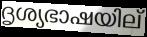
ദൃശ്യഭാഷയില്